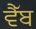
ਵੈੱਬ